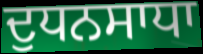
ਦੁਧਨਸਾਧਾ